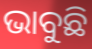
ଭାବୁଛି